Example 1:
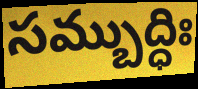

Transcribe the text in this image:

సమ్బుద్ధిః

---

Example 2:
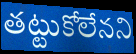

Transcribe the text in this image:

తట్టుకోలేనని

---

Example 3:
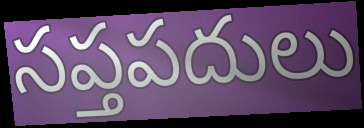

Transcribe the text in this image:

సప్తపదులు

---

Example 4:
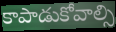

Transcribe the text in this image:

కాపాడుకోవాల్సి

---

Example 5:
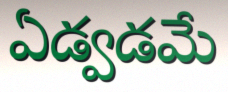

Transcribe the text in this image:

ఏడ్వడమే